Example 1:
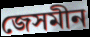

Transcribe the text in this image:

জেসমীন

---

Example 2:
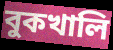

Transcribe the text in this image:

বুকখালি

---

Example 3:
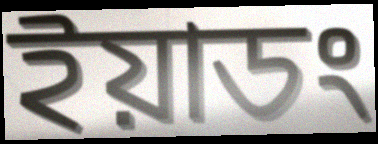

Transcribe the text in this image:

ইয়াডং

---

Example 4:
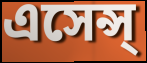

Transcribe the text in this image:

এসেন্স্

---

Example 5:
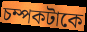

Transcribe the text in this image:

চম্পকটাকে